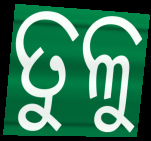
ତୁଳୁ